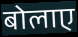
बोलाए